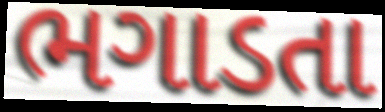
ભગાડતા